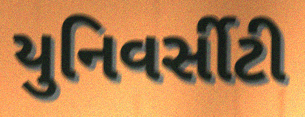
યુનિવર્સીટી